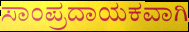
ಸಾಂಪ್ರದಾಯಕವಾಗಿ